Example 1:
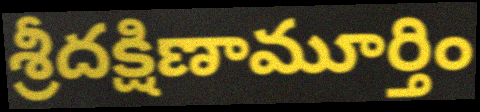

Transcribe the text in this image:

శ్రీదక్షిణామూర్తిం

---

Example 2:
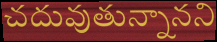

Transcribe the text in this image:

చదువుతున్నానని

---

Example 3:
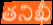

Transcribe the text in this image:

తనిఖీ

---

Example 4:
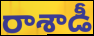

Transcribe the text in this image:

రాశాడీ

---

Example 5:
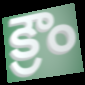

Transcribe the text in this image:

క్రౌం